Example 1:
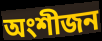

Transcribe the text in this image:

অংশীজন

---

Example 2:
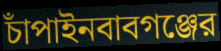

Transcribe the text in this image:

চাঁপাইনবাবগঞ্জের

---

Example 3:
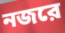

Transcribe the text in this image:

নজরে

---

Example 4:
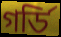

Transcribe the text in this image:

গর্ডি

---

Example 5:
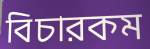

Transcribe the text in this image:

বিচারকম